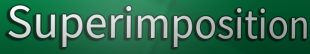
Superimposition